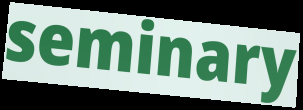
seminary